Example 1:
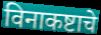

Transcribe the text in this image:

विनाकष्टाचे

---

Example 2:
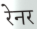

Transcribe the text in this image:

रेनर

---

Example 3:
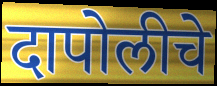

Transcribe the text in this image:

दापोलीचे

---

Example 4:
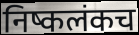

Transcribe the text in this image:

निष्कलंकच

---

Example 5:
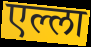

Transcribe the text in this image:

एल्ला